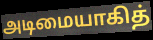
அடிமையாகித்